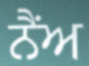
ਨੈਂਅ